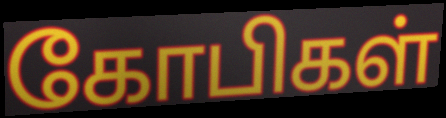
கோபிகள்